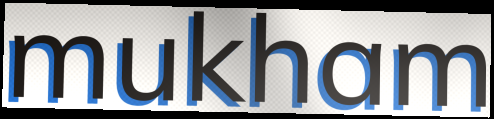
mukham